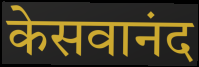
केसवानंद